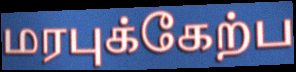
மரபுக்கேற்ப